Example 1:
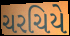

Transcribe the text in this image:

ચરચિયે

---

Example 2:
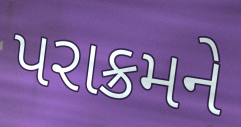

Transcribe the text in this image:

પરાક્રમને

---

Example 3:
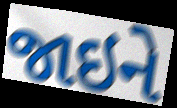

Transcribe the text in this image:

જાઇને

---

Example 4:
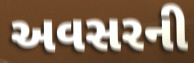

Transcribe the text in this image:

અવસરની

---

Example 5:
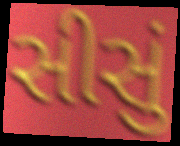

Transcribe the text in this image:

સીસું